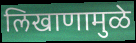
लिखाणामुळे